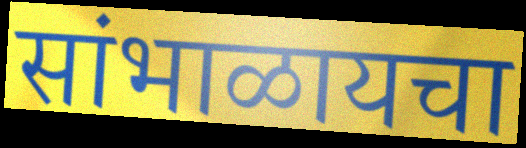
सांभाळायचा